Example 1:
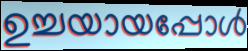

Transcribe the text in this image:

ഉച്ചയായപ്പോൾ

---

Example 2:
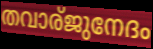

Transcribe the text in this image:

തവാര്ജുനേദം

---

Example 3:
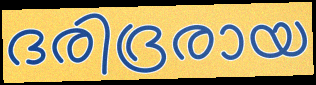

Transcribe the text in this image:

ദരിദ്രരായ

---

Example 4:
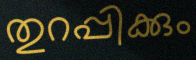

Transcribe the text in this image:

തുറപ്പിക്കും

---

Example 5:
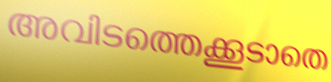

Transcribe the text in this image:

അവിടത്തെക്കൂടാതെ